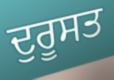
ਦੁਰੂਸਤ